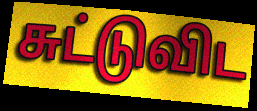
சுட்டுவிட